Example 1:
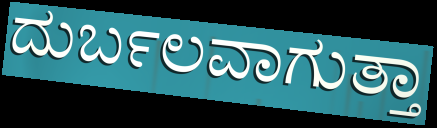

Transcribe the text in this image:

ದುರ್ಬಲವಾಗುತ್ತಾ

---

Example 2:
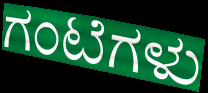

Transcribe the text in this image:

ಗಂಟೆಗಳು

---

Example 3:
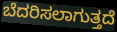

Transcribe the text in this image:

ಬೆದರಿಸಲಾಗುತ್ತದೆ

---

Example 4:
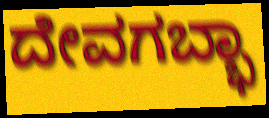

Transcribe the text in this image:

ದೇವಗಬ್ಭಾ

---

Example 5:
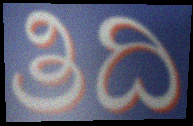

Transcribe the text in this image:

ತಿದಿ